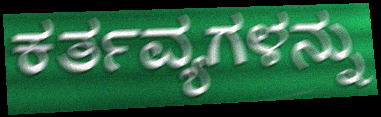
ಕರ್ತವ್ಯಗಳನ್ನು